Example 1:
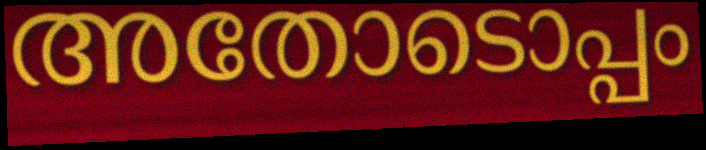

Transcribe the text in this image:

അതോടൊപ്പം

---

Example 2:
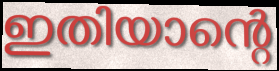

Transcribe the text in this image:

ഇതിയാന്റെ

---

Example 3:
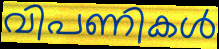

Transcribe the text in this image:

വിപണികൾ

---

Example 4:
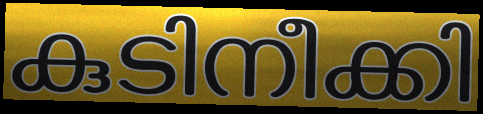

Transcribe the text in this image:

കുടിനീക്കി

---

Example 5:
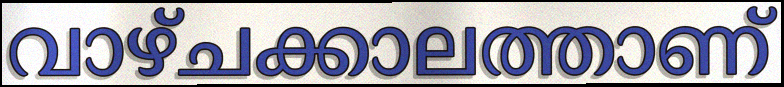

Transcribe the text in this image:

വാഴ്ചക്കാലത്താണ്